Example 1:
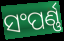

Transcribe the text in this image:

ସଂପର୍ଣ୍ଣ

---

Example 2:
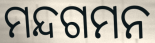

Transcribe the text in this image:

ମନ୍ଦଗମନ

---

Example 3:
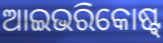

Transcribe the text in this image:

ଆଇଭରିକୋଷ୍ଟ୍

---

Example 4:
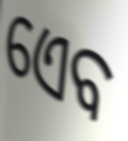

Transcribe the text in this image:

ଏେବ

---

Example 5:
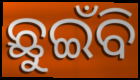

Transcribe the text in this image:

ଛୁଇଁବି